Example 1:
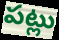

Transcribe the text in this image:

పట్లు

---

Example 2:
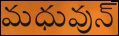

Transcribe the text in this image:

మధువున్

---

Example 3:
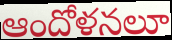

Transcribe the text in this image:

ఆందోళనలూ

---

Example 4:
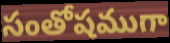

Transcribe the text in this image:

సంతోషముగా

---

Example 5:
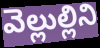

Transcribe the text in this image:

వెల్లుల్లిని